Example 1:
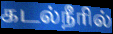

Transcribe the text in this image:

கடல்நீரில்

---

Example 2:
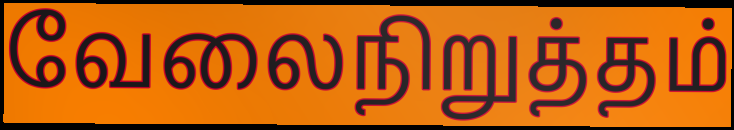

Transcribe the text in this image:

வேலைநிறுத்தம்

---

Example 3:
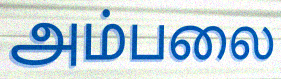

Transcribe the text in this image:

அம்பலை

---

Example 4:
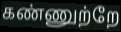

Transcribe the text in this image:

கண்ணுற்றே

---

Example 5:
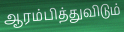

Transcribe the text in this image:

ஆரம்பித்துவிடும்